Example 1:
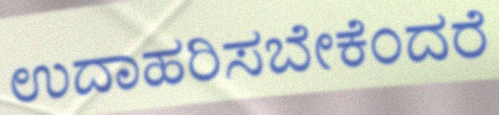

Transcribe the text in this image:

ಉದಾಹರಿಸಬೇಕೆಂದರೆ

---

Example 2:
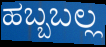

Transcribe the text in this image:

ಹಬ್ಬಬಲ್ಲ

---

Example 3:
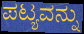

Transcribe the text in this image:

ಪಟ್ಯವನ್ನು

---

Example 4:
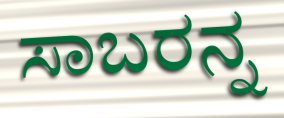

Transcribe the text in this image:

ಸಾಬರನ್ನ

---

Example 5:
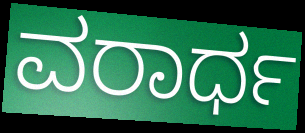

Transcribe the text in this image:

ವರಾರ್ಧ